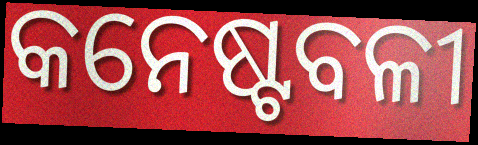
କନେଷ୍ଟବଳୀ